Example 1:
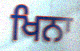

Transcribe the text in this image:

ਖਿਨਾ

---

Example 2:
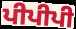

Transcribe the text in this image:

ਪੀਪੀਪੀ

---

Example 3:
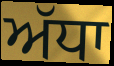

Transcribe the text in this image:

ਅੱਧਾ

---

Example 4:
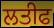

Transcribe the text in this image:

ਲਤੀਫ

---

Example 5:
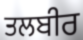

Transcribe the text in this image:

ਤਲਬੀਰ